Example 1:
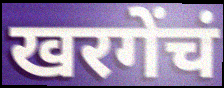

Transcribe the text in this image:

खरगेंचं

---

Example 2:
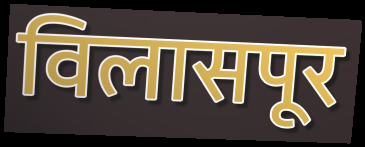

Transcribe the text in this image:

विलासपूर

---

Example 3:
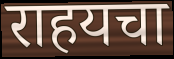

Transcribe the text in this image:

राहयचा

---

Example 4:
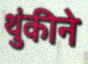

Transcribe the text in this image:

थुंकीने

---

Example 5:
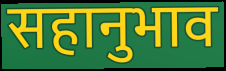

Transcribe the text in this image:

सहानुभाव